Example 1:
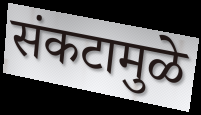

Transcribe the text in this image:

संकटामुळे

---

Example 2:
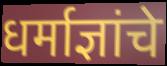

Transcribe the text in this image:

धर्माज्ञांचे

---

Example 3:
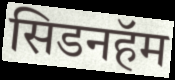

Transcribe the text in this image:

सिडनहॅम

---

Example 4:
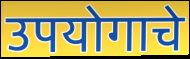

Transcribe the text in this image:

उपयोगाचे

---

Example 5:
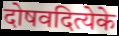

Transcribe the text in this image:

दोषवदित्येके